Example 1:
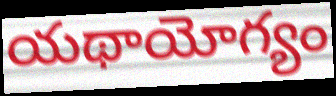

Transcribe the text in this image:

యథాయోగ్యం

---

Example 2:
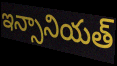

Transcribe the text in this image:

ఇన్సానియత్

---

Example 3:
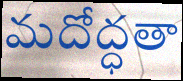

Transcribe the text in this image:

మదోద్ధతా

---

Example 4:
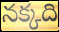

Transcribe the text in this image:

నక్కది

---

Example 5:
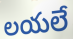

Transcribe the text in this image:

లయలే